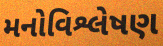
મનોવિશ્લેષણ